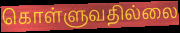
கொள்ளுவதில்லை